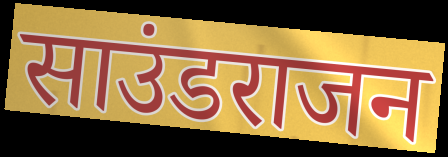
साउंडराजन